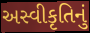
અસ્વીકૃતિનું